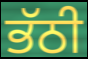
ਭੱਠੀ